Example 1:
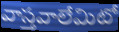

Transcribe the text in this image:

వాస్తవాలేమిటో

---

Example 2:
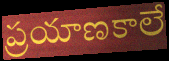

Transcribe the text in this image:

ప్రయాణకాలే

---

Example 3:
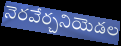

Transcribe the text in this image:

నెరవేర్చనియెడల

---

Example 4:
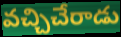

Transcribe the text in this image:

వచ్చిచేరాడు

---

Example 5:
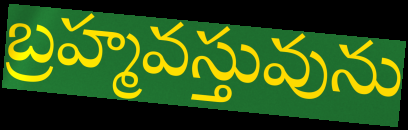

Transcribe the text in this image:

బ్రహ్మవస్తువును